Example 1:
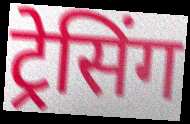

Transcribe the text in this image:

ट्रेसिंग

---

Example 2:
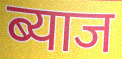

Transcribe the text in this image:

ब्‍याज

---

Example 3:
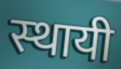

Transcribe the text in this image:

स्‍थायी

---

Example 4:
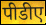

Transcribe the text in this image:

पीडीए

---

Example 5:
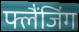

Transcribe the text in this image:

फ्लैंजिंग